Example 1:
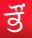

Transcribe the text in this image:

ਭੌਂ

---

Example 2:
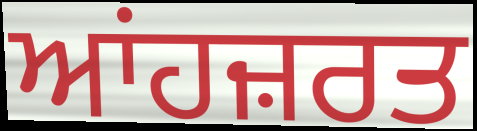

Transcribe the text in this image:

ਆਂਹਜ਼ਰਤ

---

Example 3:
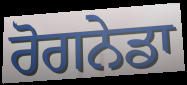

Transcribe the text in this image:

ਰੋਗਨੇਡਾ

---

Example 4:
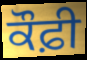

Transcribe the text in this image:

ਕੌਫ਼ੀ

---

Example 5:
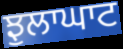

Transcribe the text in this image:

ਝੁਲਾਘਾਟ